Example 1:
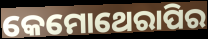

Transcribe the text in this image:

କେମୋଥେରାପିର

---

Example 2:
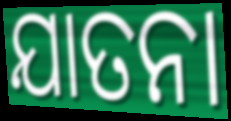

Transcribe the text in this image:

ଯାତନା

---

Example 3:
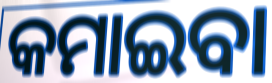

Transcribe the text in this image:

କମାଇବା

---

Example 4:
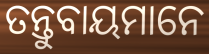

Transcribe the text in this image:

ତନ୍ତୁବାୟମାନେ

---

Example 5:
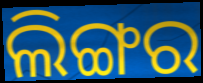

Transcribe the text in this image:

ଲିଙ୍ଗର